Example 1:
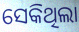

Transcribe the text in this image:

ସେକିଥିଲା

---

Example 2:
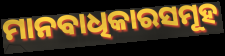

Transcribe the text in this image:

ମାନବାଧିକାରସମୂହ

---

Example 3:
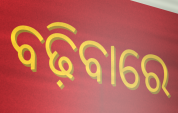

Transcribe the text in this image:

ବଢ଼ିବାରେ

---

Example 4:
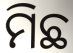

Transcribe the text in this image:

ମିଛ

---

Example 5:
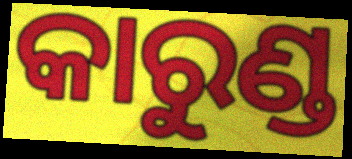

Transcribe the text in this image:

କାରୁଣ୍ଡ